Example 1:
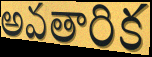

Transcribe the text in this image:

అవతారిక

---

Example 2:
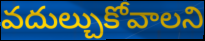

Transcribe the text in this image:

వదుల్చుకోవాలని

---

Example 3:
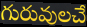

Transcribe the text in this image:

గురువులచే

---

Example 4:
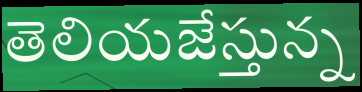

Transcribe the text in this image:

తెలియజేస్తున్న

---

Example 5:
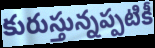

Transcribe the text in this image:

కురుస్తున్నప్పటికీ